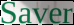
Saver